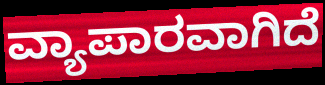
ವ್ಯಾಪಾರವಾಗಿದೆ